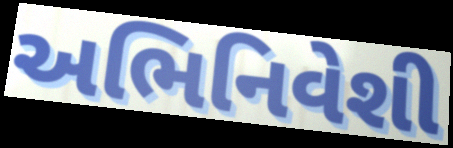
અભિનિવેશી